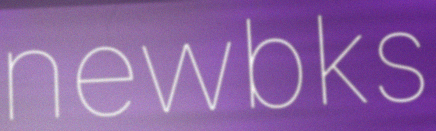
newbks